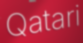
Qatari